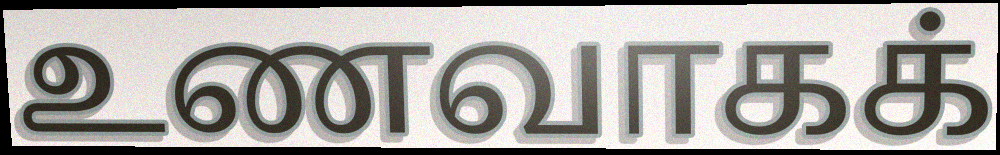
உணவாகக்